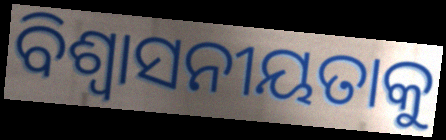
ବିଶ୍ୱାସନୀୟତାକୁ